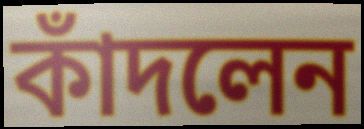
কাঁদলেন